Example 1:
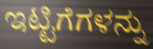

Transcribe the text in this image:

ಇಟ್ಟಿಗೆಗಳನ್ನು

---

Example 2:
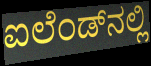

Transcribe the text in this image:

ಐಲೆಂಡ್‌ನಲ್ಲಿ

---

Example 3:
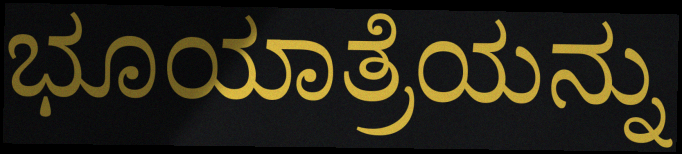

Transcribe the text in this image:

ಭೂಯಾತ್ರೆಯನ್ನು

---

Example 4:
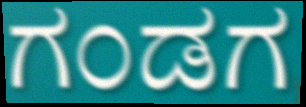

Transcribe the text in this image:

ಗಂಡಗ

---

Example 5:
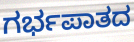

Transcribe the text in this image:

ಗರ್ಭಪಾತದ